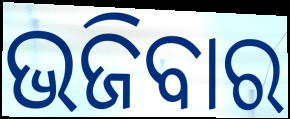
ଭଜିବାର